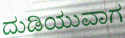
ದುಡಿಯುವಾಗ